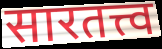
सारतत्त्व